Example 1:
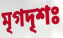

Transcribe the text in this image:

মৃগদৃশঃ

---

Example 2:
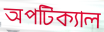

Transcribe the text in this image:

অপটিক্যাল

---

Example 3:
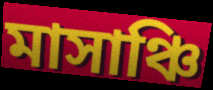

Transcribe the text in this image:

মাসাঞ্চি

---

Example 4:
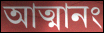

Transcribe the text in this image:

আত্মানং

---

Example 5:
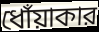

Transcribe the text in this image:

ধোঁয়াকার